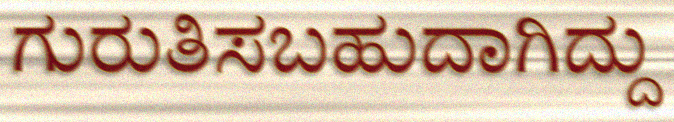
ಗುರುತಿಸಬಹುದಾಗಿದ್ದು